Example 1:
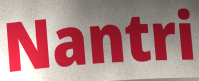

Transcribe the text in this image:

Nantri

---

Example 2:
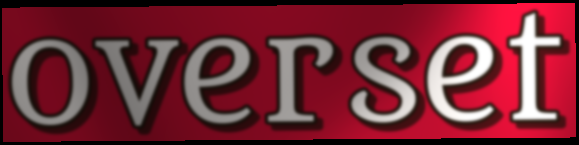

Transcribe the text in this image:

overset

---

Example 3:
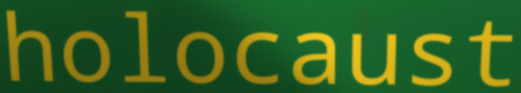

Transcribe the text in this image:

holocaust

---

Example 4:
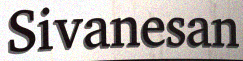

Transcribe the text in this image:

Sivanesan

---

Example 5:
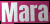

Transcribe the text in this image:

Mara